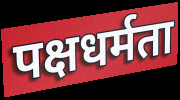
पक्षधर्मता